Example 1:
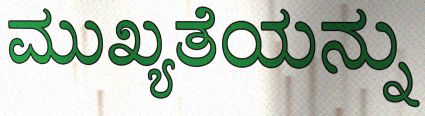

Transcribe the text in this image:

ಮುಖ್ಯತೆಯನ್ನು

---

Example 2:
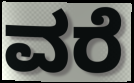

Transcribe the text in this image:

ವರೆ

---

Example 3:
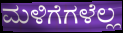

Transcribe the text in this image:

ಮಳಿಗೆಗಳೆಲ್ಲ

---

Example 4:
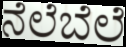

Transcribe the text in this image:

ನೆಲೆಬೆಲೆ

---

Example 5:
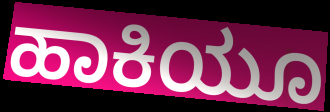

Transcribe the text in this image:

ಹಾಕಿಯೂ